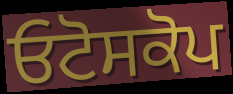
ਓਟੋਸਕੋਪ